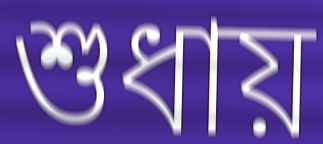
শুধায়